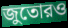
জুতোরও